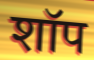
शॉप